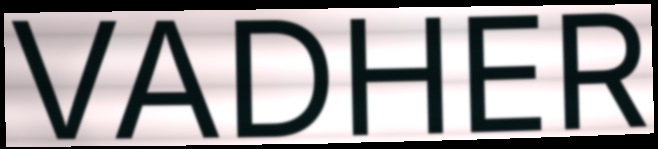
VADHER